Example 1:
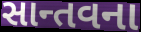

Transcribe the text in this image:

સાન્તવના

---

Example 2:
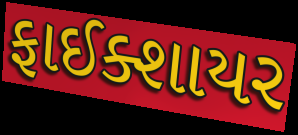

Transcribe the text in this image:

ફાઈક્શાયર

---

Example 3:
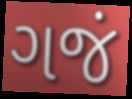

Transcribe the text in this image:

ગજં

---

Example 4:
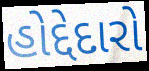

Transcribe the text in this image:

હોદ્દેદારો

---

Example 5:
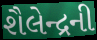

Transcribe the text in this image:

શૈલેન્દ્રની